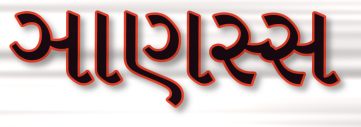
ઞાણસ્સ